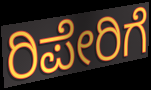
ರಿಪೇರಿಗೆ